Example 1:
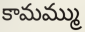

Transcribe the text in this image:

కామమ్ము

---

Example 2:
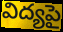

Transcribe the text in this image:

విద్యపై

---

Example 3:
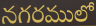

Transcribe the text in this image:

నగరములో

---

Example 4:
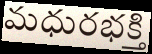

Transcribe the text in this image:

మధురభక్తి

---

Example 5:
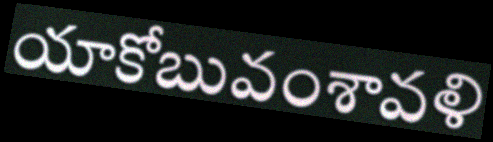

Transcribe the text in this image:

యాకోబువంశావళి